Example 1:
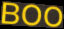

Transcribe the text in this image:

BOO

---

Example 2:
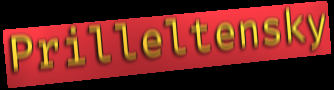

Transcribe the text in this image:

Prilleltensky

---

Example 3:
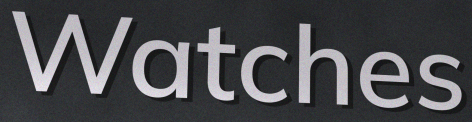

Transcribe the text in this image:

Watches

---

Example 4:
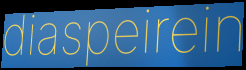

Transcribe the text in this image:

diaspeirein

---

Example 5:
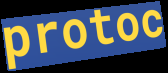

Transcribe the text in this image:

protoc